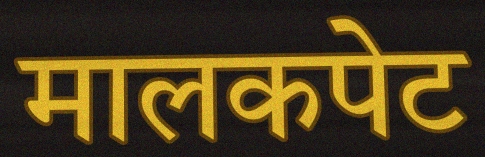
मालकपेट